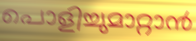
പൊളിച്ചുമാറ്റാൻ